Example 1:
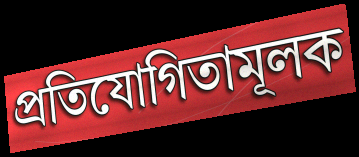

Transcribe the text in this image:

প্ৰতিযোগিতামূলক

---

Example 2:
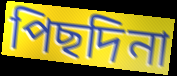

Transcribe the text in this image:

পিছদিনা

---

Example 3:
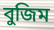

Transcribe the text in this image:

বুজিম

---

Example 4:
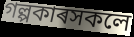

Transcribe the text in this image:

গল্পকাৰসকলে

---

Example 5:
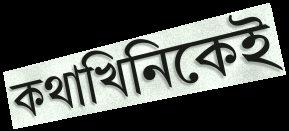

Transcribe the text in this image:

কথাখিনিকেই